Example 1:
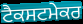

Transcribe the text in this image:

ਟੈਕਸਟਮੇਕਰ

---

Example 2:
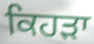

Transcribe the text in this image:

ਕਿਹੜਾ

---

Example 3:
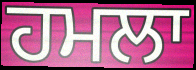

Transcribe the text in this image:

ਹਮਲਾ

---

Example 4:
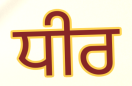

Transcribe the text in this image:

ਧੀਰ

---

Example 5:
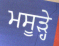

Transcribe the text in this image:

ਮਸੂੜ੍ਹੇ